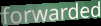
forwarded